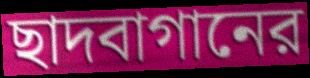
ছাদবাগানের